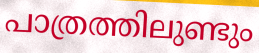
പാത്രത്തിലുണ്ടും